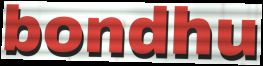
bondhu